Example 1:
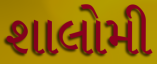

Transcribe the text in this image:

શાલોમી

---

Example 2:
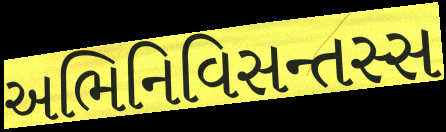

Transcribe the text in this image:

અભિનિવિસન્તસ્સ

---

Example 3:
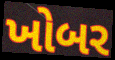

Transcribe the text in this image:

ખોબર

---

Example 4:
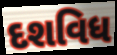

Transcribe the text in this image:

દશવિધ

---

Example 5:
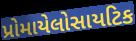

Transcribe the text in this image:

પ્રોમાયેલોસાયટિક